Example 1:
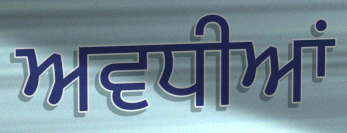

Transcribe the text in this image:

ਅਵਧੀਆਂ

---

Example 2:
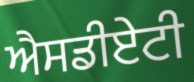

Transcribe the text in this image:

ਐਸਡੀਏਟੀ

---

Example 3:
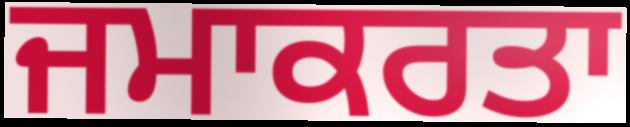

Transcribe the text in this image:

ਜਮਾਕਰਤਾ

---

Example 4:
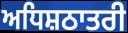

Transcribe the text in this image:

ਅਧਿਸ਼ਠਾਤਰੀ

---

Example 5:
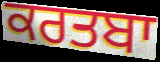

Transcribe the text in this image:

ਕਰਤਬਾ